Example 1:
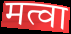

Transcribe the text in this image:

मत्वा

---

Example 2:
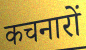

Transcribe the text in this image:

कचनारों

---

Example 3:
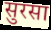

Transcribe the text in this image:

सुरसा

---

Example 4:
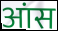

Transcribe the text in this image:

आंस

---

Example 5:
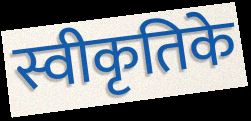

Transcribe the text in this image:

स्वीकृतिके